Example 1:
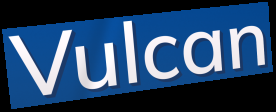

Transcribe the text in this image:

Vulcan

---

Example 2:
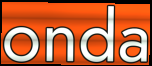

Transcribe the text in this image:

onda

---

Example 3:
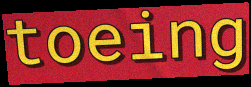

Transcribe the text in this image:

toeing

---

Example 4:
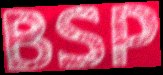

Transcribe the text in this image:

BSP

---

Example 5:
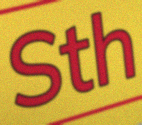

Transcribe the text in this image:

Sth